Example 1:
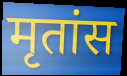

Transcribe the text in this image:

मृतांस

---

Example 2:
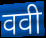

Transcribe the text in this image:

ववी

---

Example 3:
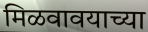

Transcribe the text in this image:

मिळवावयाच्या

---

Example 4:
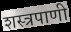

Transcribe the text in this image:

शस्त्रपाणी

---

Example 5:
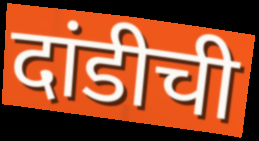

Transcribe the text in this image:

दांडीची